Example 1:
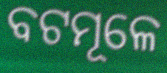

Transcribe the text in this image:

ବଟମୂଳେ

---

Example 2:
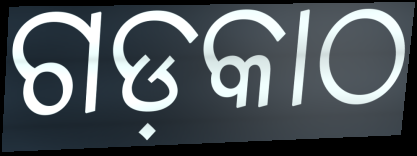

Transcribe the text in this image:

ଗଡ଼କାଠ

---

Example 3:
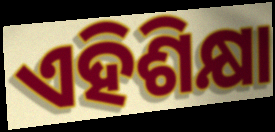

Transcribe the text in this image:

ଏହିଶିକ୍ଷା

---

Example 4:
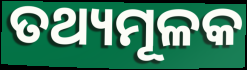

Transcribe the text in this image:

ତଥ୍ୟମୂଳକ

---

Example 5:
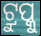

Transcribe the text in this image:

ଟ୍ରୁପ୍କୁ